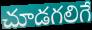
చూడగలిగే